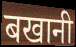
बखानी